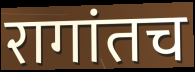
रागांतच